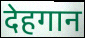
देहगान